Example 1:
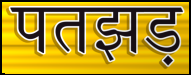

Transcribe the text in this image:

पतझड़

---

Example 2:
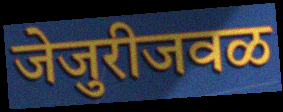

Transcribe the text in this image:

जेजुरीजवळ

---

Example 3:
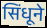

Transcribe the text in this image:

सिंधूने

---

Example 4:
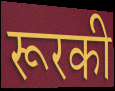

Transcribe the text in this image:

रूरकी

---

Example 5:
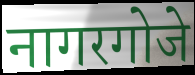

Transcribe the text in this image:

नागरगोजे